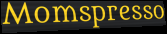
Momspresso